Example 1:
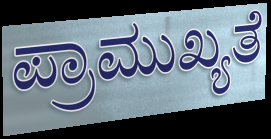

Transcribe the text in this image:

ಪ್ರಾಮುಖ್ಯತೆ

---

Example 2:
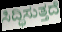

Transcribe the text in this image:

ಸಿದ್ಧಿಸುತ್ತದೆ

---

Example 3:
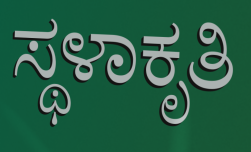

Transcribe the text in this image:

ಸ್ಥಳಾಕೃತಿ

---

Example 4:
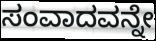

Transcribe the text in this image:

ಸಂವಾದವನ್ನೇ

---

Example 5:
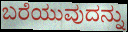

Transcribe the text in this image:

ಬರೆಯುವುದನ್ನು